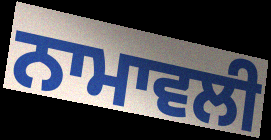
ਨਾਮਾਵਲੀ